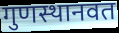
गुणस्थानवत